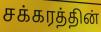
சக்கரத்தின்